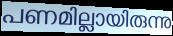
പണമില്ലായിരുന്നു